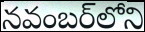
నవంబర్‌లోని